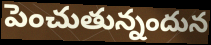
పెంచుతున్నందున